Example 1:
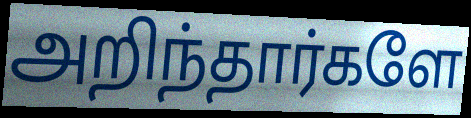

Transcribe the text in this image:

அறிந்தார்களே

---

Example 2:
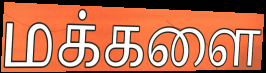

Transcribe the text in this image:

மக்களை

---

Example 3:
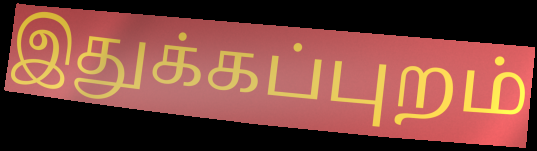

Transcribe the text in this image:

இதுக்கப்புறம்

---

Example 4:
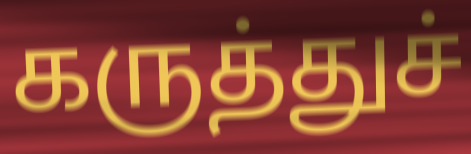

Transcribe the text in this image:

கருத்துச்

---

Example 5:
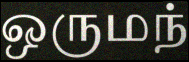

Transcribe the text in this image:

ஒருமந்